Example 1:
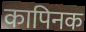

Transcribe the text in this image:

कापिनक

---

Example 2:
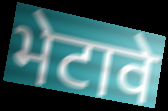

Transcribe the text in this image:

भेटावे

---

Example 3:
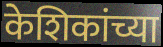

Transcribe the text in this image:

केशिकांच्या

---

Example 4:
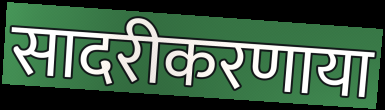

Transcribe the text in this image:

सादरीकरणाया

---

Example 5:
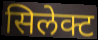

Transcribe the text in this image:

सिलेक्ट